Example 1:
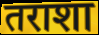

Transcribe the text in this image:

तराशा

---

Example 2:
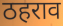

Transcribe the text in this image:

ठहराव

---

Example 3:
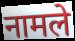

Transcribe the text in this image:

नामले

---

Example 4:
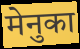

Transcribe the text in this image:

मेनुका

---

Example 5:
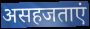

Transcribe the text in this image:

असहजताएं